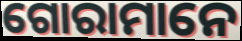
ଗୋରାମାନେ